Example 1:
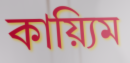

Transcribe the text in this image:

কায়্যিম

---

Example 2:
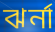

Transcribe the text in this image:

ঝর্না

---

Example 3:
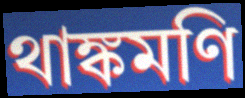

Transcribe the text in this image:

থাঙ্কমণি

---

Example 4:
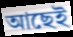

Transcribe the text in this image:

আছেই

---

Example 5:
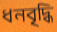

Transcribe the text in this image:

ধনবৃদ্ধি